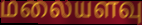
மலையளவு